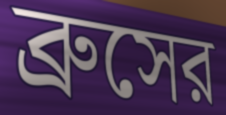
ব্রুসের